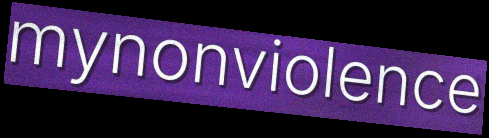
mynonviolence